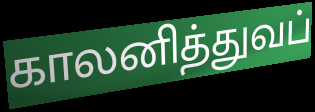
காலனித்துவப்